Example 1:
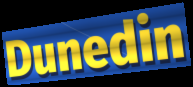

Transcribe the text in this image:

Dunedin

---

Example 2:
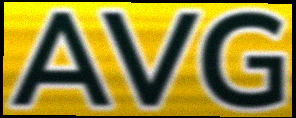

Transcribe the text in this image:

AVG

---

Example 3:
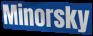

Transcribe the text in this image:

Minorsky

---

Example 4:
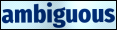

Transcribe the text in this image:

ambiguous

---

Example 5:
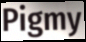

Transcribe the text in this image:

Pigmy